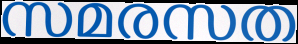
സമരസത